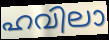
ഹവിലാ